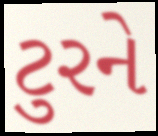
ટુરને